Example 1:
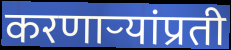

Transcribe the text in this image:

करणाऱ्यांप्रती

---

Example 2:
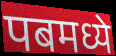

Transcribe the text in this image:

पबमध्ये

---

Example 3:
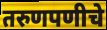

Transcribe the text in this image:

तरुणपणीचे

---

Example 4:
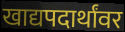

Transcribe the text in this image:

खाद्यपदार्थांवर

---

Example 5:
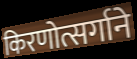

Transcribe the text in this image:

किरणोत्सर्गाने